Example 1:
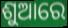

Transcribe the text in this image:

ଶୁଆରେ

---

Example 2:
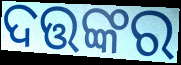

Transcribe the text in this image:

ଦତ୍ତଙ୍କର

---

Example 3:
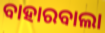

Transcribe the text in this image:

ବାହାରବାଲା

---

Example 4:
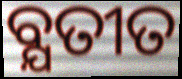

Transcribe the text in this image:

ବ୍ଯତୀତ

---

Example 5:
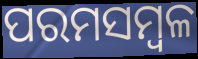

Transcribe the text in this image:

ପରମସମ୍ବଳ